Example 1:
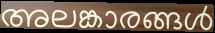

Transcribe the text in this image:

അലങ്കാരങ്ങൾ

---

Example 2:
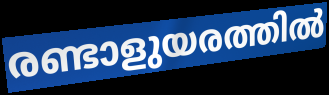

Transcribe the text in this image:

രണ്ടാളുയരത്തിൽ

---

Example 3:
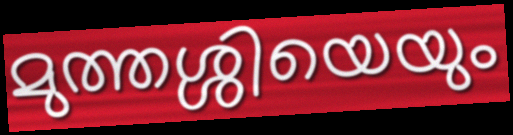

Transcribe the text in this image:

മുത്തശ്ശിയെയും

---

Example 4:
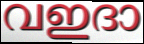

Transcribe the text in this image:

വഇദാ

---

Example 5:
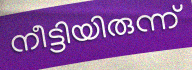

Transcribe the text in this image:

നീട്ടിയിരുന്ന്